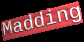
Madding